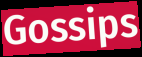
Gossips